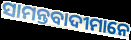
ସାମନ୍ତବାଦୀମାନେ